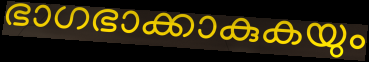
ഭാഗഭാക്കാകുകയും